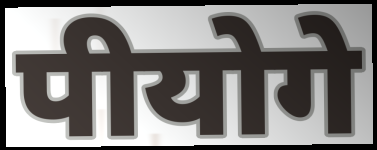
पीयोगे